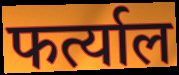
फर्त्याल